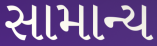
સામાન્ય